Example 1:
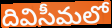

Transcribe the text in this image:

దివిసీమలో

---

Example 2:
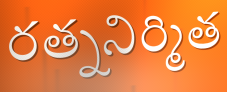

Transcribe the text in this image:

రత్ననిర్మిత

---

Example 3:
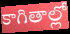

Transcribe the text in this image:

కాగితాల్లో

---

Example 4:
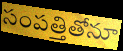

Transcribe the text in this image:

సంపత్తితోనూ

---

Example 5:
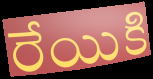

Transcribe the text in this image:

రేయికి